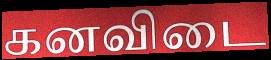
கனவிடை